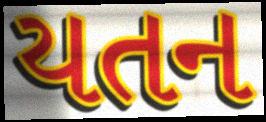
યતન